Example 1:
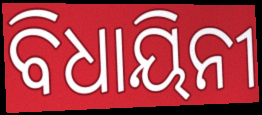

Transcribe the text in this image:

ବିଧାୟିନୀ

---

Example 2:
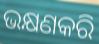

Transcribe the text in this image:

ଭକ୍ଷଣକରି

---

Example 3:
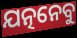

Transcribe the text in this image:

ଯତ୍ନନେବୁ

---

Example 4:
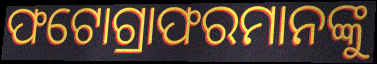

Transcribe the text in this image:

ଫଟୋଗ୍ରାଫରମାନଙ୍କୁ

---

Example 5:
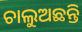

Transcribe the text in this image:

ଚାଲୁଅଛନ୍ତି